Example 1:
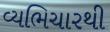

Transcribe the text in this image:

વ્યભિચારથી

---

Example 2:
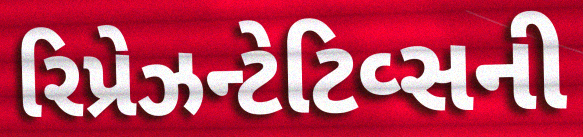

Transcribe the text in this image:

રિપ્રેઝન્ટેટિવ્સની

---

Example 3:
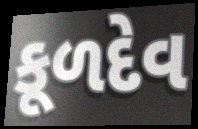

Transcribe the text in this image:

કૂળદેવ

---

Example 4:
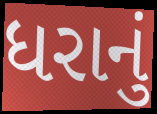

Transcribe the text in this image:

ધરાનું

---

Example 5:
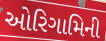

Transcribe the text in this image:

ઓરિગામિની